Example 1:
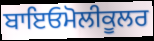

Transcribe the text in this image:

ਬਾਇਓਮੋਲੀਕੂਲਰ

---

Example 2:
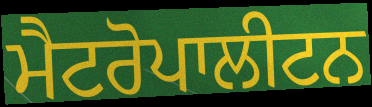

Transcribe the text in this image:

ਮੈਟਰੋਪਾਲੀਟਨ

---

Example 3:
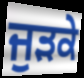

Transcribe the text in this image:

ਜੁੜਕੇ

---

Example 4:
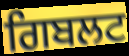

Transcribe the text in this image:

ਗਿਬਲਟ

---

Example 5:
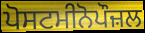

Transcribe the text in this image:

ਪੋਸਟਮੀਨੋਪੌਜ਼ਲ